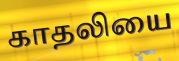
காதலியை